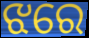
ଝରେ